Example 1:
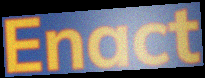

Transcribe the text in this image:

Enact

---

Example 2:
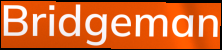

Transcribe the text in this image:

Bridgeman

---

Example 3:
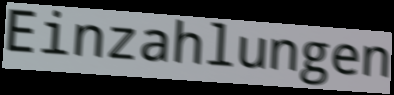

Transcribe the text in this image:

Einzahlungen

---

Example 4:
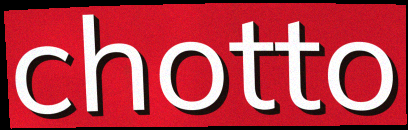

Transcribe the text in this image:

chotto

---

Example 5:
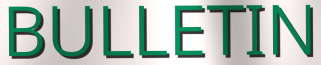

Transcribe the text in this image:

BULLETIN